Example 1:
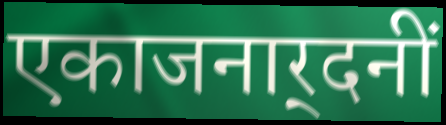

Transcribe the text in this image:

एकाजनार्दनीं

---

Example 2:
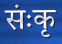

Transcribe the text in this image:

संःकृ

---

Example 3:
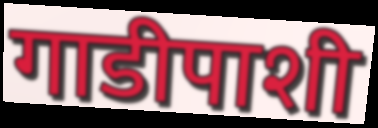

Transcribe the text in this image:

गाडीपाशी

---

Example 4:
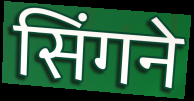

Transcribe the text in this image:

सिंगने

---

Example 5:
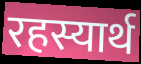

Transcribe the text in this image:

रहस्यार्थ